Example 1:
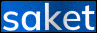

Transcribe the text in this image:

saket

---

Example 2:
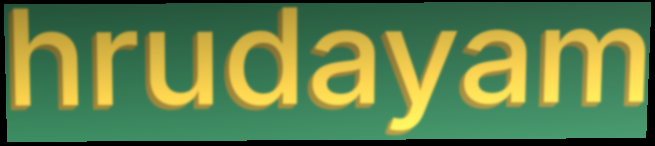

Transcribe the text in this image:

hrudayam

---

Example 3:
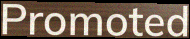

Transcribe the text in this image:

Promoted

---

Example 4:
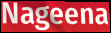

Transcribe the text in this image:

Nageena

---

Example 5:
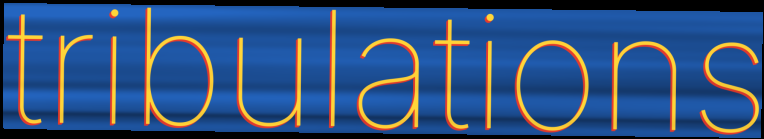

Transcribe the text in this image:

tribulations